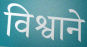
विश्वाने